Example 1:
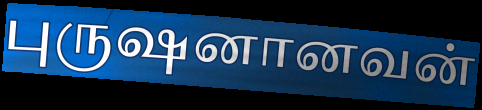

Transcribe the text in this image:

புருஷனானவன்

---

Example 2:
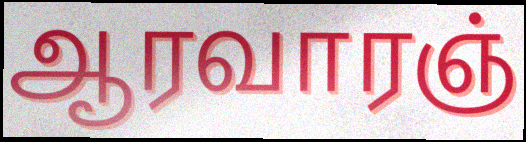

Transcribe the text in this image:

ஆரவாரஞ்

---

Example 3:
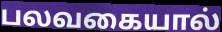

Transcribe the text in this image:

பலவகையால்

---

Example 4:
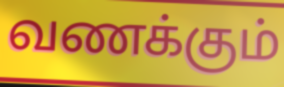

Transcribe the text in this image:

வணக்கும்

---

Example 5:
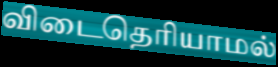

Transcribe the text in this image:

விடைதெரியாமல்